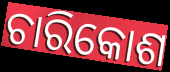
ଚାରିକୋଶ